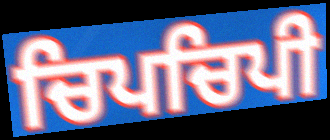
ਚਿਪਚਿਪੀ